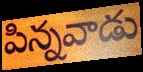
పిన్నవాడు